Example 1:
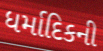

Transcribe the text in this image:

ધર્માદિકની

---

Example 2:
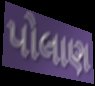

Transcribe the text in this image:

પોલાણ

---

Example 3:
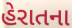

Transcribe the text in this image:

હેરાતના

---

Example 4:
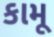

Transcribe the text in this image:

કામૂ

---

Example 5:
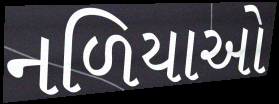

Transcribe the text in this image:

નળિયાઓ